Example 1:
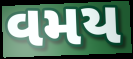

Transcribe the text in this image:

વમય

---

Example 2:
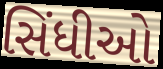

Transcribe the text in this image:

સિંધીઓ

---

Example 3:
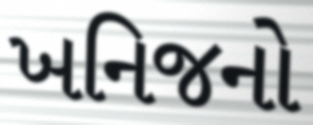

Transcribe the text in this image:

ખનિજનો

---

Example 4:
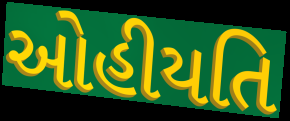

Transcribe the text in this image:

ઓહીયતિ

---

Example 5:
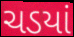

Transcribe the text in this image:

ચડયાં